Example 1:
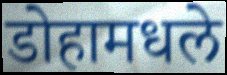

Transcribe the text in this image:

डोहामधले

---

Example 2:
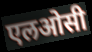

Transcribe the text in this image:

एलओसी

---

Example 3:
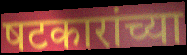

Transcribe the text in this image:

षटकारांच्या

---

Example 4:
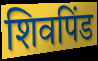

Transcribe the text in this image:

शिवपिंड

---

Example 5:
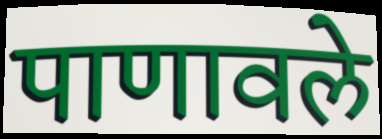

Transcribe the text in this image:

पाणावले